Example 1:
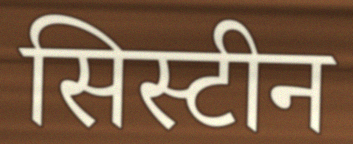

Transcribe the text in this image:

सिस्टीन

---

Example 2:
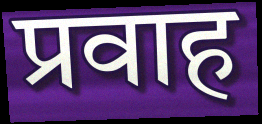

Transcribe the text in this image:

प्रवाह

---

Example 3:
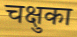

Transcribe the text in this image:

चक्षुका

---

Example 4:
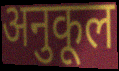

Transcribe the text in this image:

अनुकूल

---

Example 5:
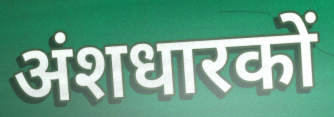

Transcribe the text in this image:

अंशधारकों